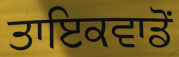
ਤਾਇਕਵਾਡੋਂ